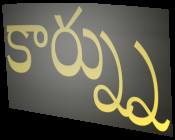
కార్న్ను